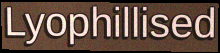
Lyophillised